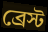
ব্রেস্ট